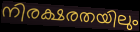
നിരക്ഷരതയിലും